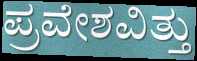
ಪ್ರವೇಶವಿತ್ತು